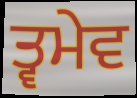
ਤ੍ਵਮੇਵ